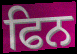
ਫਿਨ